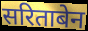
सरिताबेन